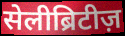
सेलीब्रिटीज़